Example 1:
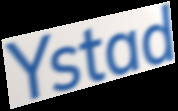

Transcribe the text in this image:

Ystad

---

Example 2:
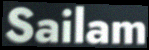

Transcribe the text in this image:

Sailam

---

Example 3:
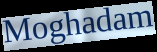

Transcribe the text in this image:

Moghadam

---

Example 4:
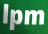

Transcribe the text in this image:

lpm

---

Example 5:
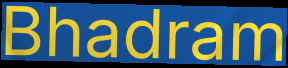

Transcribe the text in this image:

Bhadram